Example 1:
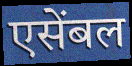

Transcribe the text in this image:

एसेंबल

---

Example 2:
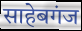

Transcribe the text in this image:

साहेबगंज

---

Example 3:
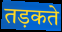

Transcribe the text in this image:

तड़कते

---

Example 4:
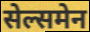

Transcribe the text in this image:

सेल्समेन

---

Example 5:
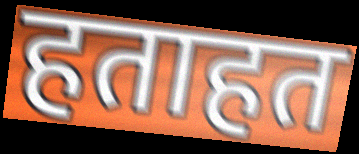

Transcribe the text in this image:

हताहत